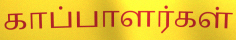
காப்பாளர்கள்